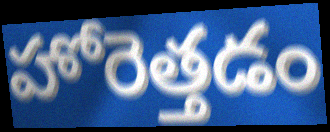
హోరెత్తడం